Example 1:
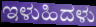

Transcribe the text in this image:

ಇಳುಹಿದಳು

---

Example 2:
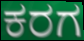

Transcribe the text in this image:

ಕರಗ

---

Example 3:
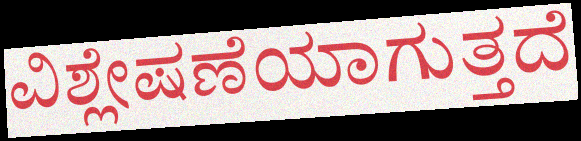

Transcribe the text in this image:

ವಿಶ್ಲೇಷಣೆಯಾಗುತ್ತದೆ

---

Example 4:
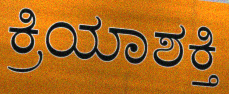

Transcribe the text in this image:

ಕ್ರಿಯಾಶಕ್ತಿ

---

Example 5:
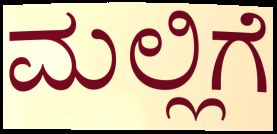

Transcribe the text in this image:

ಮಲ್ಲಿಗೆ